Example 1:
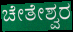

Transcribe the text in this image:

ಚೇತೇಶ್ವರ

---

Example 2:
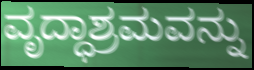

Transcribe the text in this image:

ವೃದ್ಧಾಶ್ರಮವನ್ನು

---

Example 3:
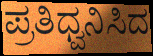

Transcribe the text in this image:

ಪ್ರತಿಧ್ವನಿಸಿದ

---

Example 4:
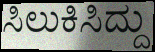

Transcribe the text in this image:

ಸಿಲುಕಿಸಿದ್ದು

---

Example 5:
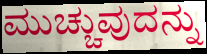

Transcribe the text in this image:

ಮುಚ್ಚುವುದನ್ನು